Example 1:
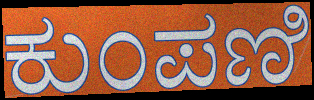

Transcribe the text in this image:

ಕುಂಪಣಿ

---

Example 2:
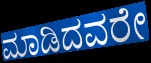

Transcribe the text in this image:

ಮಾಡಿದವರೇ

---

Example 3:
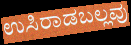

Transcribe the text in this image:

ಉಸಿರಾಡಬಲ್ಲವು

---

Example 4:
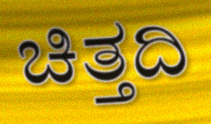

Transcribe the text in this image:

ಚಿತ್ತದಿ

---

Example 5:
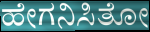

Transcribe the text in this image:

ಹೇಗನಿಸಿತೋ